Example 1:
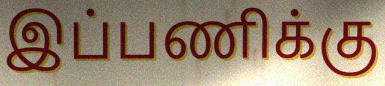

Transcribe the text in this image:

இப்பணிக்கு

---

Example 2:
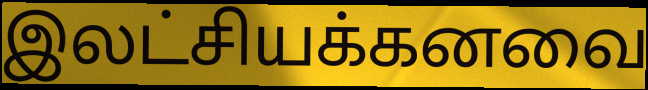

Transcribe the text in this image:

இலட்சியக்கனவை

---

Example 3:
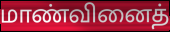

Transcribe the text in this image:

மாண்வினைத்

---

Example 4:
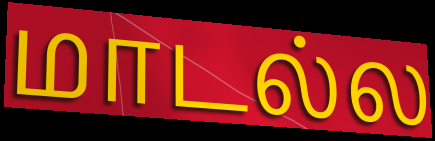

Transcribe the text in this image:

மாடல்ல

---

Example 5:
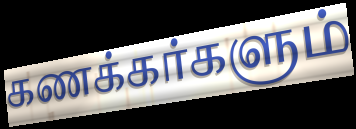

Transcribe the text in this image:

கணக்கர்களும்